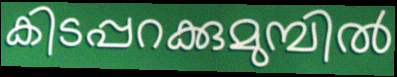
കിടപ്പറക്കുമുമ്പിൽ